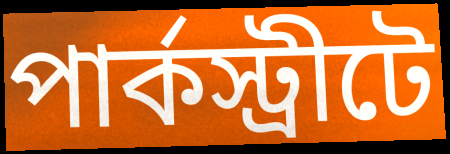
পার্কস্ট্রীটে